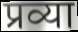
प्रव्या